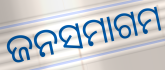
ଜନସମାଗମ